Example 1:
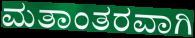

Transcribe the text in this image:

ಮತಾಂತರವಾಗಿ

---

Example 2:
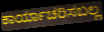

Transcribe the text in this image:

ಕಾರ್ಯಾಚರಿಸಬಲ್ಲ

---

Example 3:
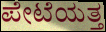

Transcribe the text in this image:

ಪೇಟೆಯತ್ತ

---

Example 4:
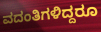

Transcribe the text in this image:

ವದಂತಿಗಳಿದ್ದರೂ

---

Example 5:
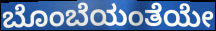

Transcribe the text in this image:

ಬೊಂಬೆಯಂತೆಯೇ